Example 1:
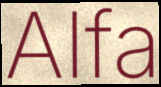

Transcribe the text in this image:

Alfa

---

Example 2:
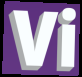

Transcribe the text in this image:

Vi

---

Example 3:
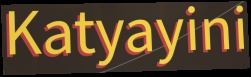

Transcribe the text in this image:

Katyayini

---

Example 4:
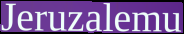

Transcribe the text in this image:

Jeruzalemu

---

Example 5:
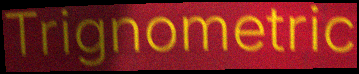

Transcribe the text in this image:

Trignometric